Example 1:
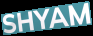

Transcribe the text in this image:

SHYAM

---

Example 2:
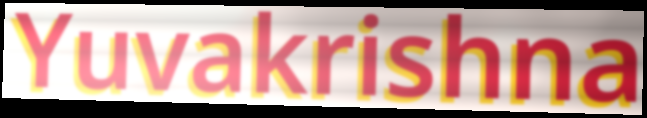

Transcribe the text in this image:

Yuvakrishna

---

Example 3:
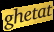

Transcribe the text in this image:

ghetat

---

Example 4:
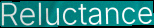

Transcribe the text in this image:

Reluctance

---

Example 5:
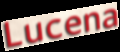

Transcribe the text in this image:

Lucena